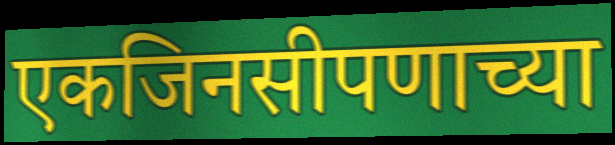
एकजिनसीपणाच्या